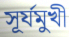
সূর্যমুখী